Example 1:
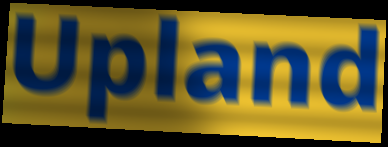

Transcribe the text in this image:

Upland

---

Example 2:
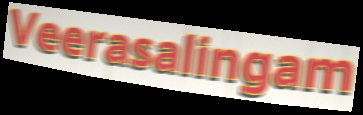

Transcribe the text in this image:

Veerasalingam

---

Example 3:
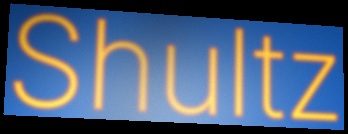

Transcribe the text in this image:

Shultz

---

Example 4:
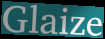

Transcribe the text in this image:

Glaize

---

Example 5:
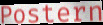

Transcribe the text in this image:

Postern